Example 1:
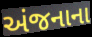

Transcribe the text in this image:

અંજનાના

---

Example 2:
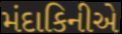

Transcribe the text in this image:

મંદાકિનીએ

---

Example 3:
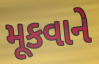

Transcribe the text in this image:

મૂકવાને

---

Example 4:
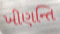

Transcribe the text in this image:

ખીણન્તિ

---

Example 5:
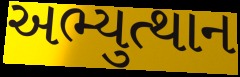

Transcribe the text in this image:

અભ્યુત્થાન